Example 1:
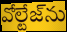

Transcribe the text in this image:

వోల్టేజ్‌ను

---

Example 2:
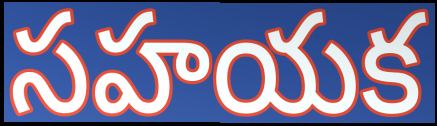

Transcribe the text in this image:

సహయక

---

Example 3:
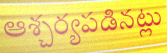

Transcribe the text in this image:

ఆశ్చర్యపడినట్లు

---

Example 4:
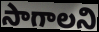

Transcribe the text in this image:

సాగాలని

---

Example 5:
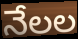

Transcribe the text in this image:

నేలల